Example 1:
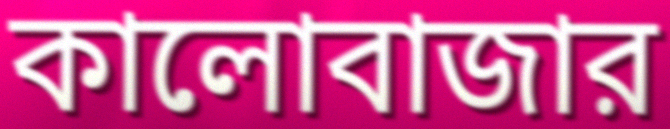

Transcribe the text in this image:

কালোবাজার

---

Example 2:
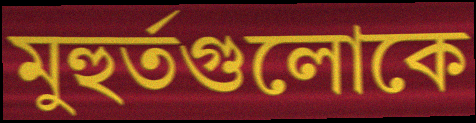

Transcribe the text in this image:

মুহুর্তগুলোকে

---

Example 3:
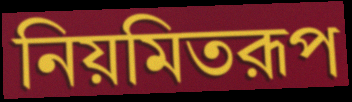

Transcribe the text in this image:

নিয়মিতরূপ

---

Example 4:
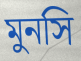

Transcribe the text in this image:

মুনসি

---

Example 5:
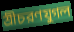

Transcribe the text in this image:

শ্রীচরণযুগল